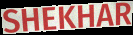
SHEKHAR